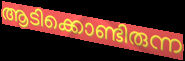
ആടിക്കൊണ്ടിരുന്ന